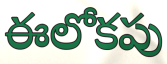
ఈలోకపు